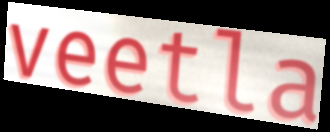
veetla